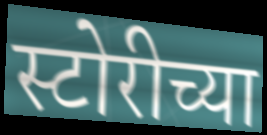
स्टोरीच्या